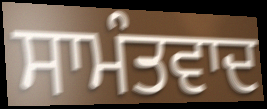
ਸਾਮੰਤਵਾਦ